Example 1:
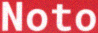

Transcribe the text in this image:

Noto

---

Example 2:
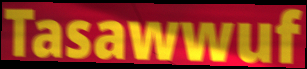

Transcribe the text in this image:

Tasawwuf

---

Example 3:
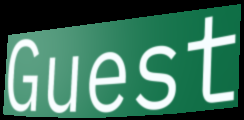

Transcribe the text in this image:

Guest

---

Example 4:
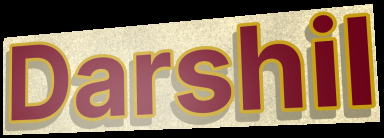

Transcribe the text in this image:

Darshil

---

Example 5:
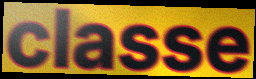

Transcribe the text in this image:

classe